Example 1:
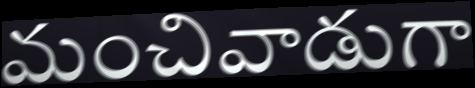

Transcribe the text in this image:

మంచివాడుగా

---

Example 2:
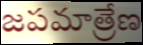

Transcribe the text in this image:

జపమాత్రేణ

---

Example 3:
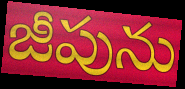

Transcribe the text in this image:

జీపును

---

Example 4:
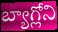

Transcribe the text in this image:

బ్యాగ్లోని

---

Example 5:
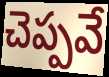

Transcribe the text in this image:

చెప్పవే